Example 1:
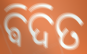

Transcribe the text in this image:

ଵିଦିତ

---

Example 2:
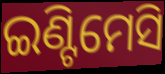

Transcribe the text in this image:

ଇଣ୍ଟିମେସି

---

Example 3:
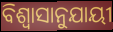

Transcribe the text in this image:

ବିଶ୍ୱାସାନୁଯାୟୀ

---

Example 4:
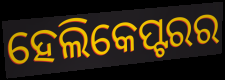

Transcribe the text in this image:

ହେଲିକେପ୍ଟରର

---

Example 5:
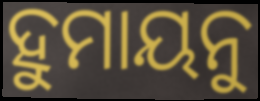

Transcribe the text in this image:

ହୁମାୟନୁ